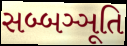
સબ્બઞ્ઞૂતિ